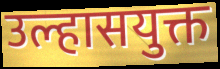
उल्हासयुक्त